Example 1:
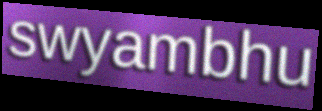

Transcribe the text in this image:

swyambhu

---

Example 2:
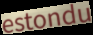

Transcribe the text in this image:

estondu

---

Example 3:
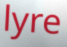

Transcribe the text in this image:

lyre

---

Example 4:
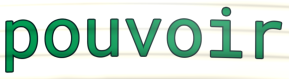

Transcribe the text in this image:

pouvoir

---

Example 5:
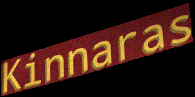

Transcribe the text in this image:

Kinnaras